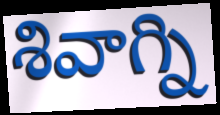
శివాగ్ని